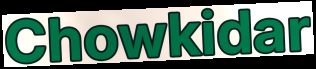
Chowkidar